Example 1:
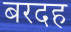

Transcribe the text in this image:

बरदह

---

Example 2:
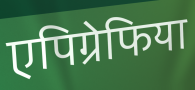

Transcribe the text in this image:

एपिग्रेफिया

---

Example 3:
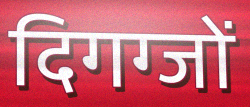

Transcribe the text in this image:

दिगग्जों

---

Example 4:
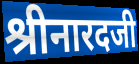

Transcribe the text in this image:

श्रीनारदजी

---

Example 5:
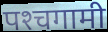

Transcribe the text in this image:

पश्चगामी